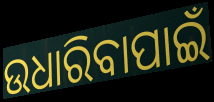
ଉଧାରିବାପାଇଁ